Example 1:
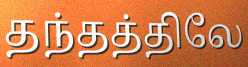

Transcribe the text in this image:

தந்தத்திலே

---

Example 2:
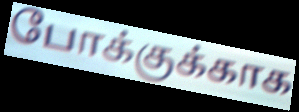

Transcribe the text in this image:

போக்குக்காக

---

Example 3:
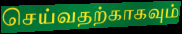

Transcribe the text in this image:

செய்வதற்காகவும்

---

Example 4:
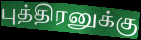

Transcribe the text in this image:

புத்திரனுக்கு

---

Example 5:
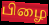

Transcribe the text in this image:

பிழை